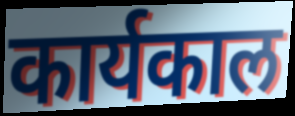
कार्यकाल